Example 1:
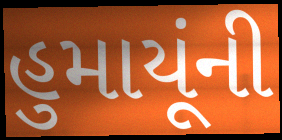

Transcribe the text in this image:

હુમાયૂંની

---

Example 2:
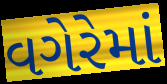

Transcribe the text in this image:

વગેરેમાં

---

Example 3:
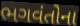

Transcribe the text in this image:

ભગવંતોના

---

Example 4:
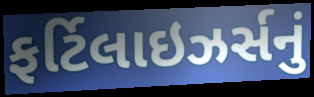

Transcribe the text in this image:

ફર્ટિલાઇઝર્સનું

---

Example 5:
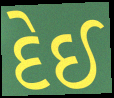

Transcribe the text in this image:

દેઈ